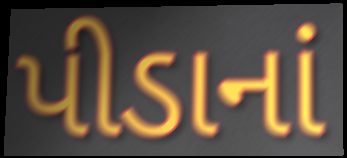
પીડાનાં